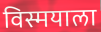
विस्मयाला